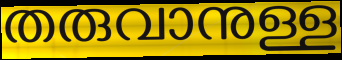
തരുവാനുള്ള